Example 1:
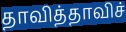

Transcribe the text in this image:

தாவித்தாவிச்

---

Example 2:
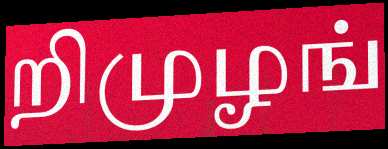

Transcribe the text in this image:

றிமுழங்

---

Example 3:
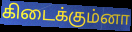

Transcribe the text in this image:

கிடைக்கும்னா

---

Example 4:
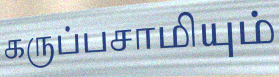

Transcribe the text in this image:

கருப்பசாமியும்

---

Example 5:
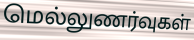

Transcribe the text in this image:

மெல்லுணர்வுகள்